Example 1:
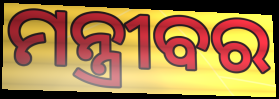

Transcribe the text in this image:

ମନ୍ତ୍ରୀବର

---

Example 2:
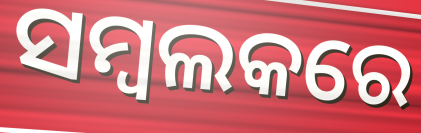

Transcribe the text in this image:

ସମ୍ବଲକରେ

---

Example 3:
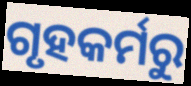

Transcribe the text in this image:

ଗୃହକର୍ମରୁ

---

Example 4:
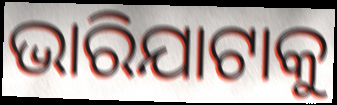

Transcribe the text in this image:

ଭାରିଯାଟାକୁ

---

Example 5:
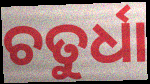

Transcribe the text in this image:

ଚତୁର୍ଧା